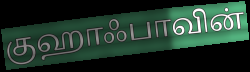
குஹாஃபாவின்